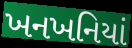
ખનખનિયાં